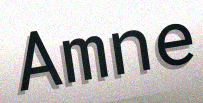
Amne